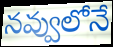
నవ్వులోనే